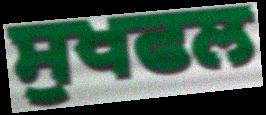
ਸੁਖਫਲ